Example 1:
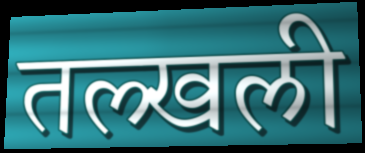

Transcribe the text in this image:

तल्खली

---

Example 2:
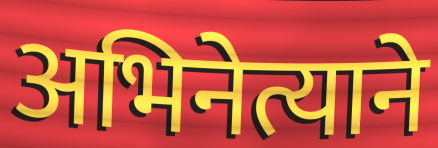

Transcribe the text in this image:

अभिनेत्याने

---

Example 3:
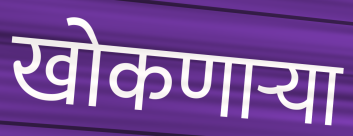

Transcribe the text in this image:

खोकणाऱ्या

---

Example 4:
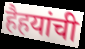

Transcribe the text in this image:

हैहयांची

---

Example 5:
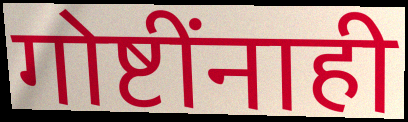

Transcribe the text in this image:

गोष्टींनाही